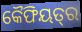
କୈଫିୟତ୍‌ର